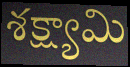
శక్ష్యామి